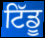
ਟਿੱਡੂ